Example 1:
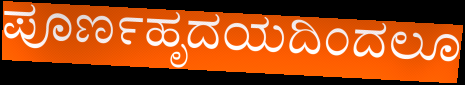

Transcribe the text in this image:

ಪೂರ್ಣಹೃದಯದಿಂದಲೂ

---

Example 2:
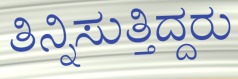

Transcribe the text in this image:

ತಿನ್ನಿಸುತ್ತಿದ್ದರು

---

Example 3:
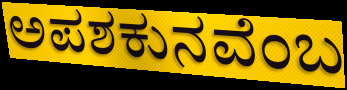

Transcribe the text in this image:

ಅಪಶಕುನವೆಂಬ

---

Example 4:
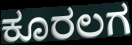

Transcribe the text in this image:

ಕೂರಲಗ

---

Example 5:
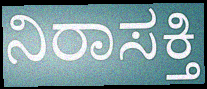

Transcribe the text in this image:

ನಿರಾಸಕ್ತಿ